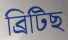
ব্ৰিটিছ